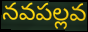
నవపల్లవ